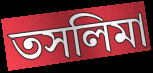
তসলিমা